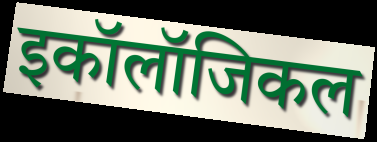
इकॉलॉजिकल